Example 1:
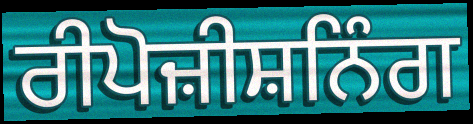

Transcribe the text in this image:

ਰੀਪੋਜ਼ੀਸ਼ਨਿੰਗ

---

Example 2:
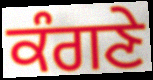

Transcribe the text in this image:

ਕੰਗਣੇ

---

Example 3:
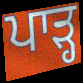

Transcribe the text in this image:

ਪਾੜ੍ਹ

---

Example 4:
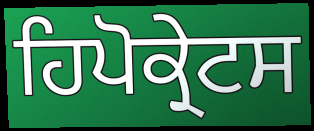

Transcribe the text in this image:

ਹਿਪੋਕ੍ਰੇਟਸ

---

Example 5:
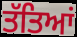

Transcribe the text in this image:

ਤੱਤਿਆਂ